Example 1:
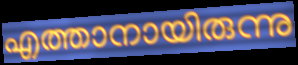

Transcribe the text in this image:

എത്താനായിരുന്നു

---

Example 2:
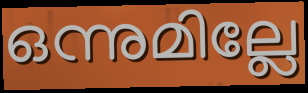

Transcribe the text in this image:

ഒന്നുമില്ലേ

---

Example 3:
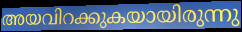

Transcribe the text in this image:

അയവിറക്കുകയായിരുന്നു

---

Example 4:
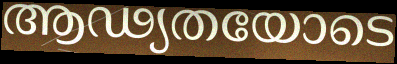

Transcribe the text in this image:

ആഢ്യതയോടെ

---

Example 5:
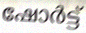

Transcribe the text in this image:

ഷോർട്ട്